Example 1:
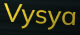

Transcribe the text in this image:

Vysya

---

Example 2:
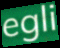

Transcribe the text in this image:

egli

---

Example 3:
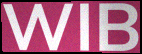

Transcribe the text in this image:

WIB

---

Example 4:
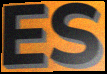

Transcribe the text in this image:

ES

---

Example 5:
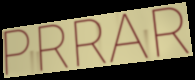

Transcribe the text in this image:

PRRAR